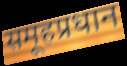
समूहप्रधान